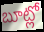
బూట్లో